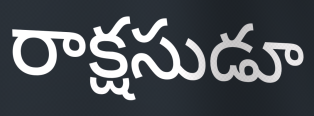
రాక్షసుడూ